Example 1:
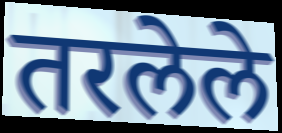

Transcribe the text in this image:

तरलेले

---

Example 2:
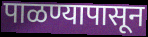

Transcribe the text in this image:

पाळण्यापासून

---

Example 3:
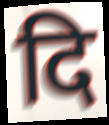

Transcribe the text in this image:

दि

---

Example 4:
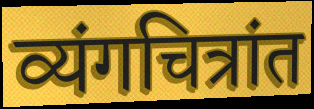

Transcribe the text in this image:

व्यंगचित्रांत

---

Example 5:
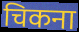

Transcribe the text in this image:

चिकना